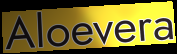
Aloevera